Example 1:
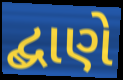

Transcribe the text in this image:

દ્બાણે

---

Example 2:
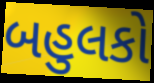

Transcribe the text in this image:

બહુલકો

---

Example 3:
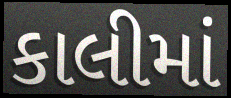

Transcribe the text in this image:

કાલીમાં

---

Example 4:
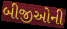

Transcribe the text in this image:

બીજીઓની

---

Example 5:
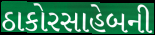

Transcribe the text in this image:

ઠાકોરસાહેબની